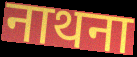
नाथना